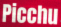
Picchu